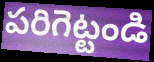
పరిగెట్టండి